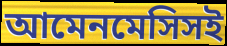
আমেনমেসিসই